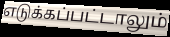
எடுக்கப்பட்டாலும்